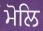
ਮੋਲਿ